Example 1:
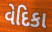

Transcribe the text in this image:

વેદિકા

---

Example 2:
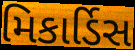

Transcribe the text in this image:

મિકાર્ડિસ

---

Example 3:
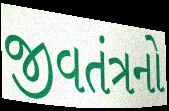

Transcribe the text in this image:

જીવતંત્રનો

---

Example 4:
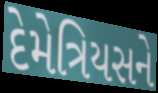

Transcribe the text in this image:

દેમેત્રિયસને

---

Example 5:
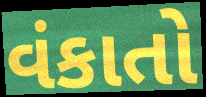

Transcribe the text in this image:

વંકાતો